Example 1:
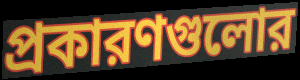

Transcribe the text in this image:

প্রকারণগুলোর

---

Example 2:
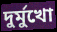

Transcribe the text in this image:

দুর্মুখো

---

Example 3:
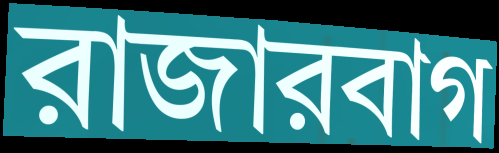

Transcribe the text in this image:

রাজারবাগ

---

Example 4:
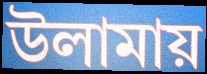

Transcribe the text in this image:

উলামায়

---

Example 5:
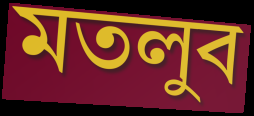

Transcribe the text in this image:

মতলুব